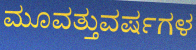
ಮೂವತ್ತುವರ್ಷಗಳ